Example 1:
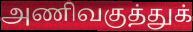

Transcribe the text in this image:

அணிவகுத்துக்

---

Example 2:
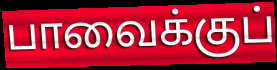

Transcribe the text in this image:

பாவைக்குப்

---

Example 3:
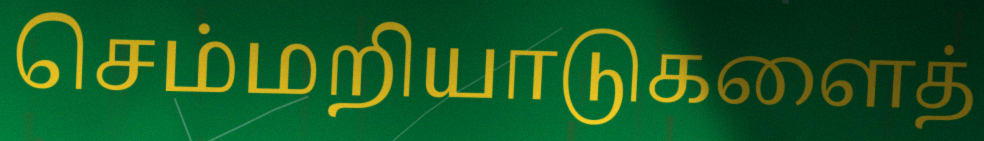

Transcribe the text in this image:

செம்மறியாடுகளைத்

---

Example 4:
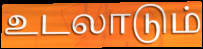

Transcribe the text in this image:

உடலாடும்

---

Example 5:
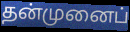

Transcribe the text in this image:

தன்முனைப்